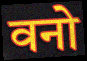
वनो